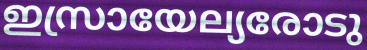
ഇസ്രായേല്യരോടു